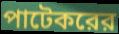
পাটেকরের